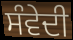
ਸੰਵੇਦੀ